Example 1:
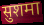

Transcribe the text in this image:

सुशमा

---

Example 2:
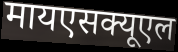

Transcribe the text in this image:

मायएसक्यूएल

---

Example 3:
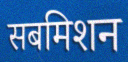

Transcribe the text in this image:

सबमिशन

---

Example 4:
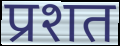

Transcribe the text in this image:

प्रशत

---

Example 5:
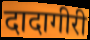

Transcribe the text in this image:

दादागीरी